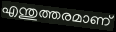
എന്തുത്തരമാണ്